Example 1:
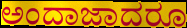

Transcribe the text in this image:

ಅಂದಾಜಾದರೂ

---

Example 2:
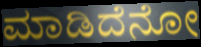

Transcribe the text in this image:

ಮಾಡಿದೆನೋ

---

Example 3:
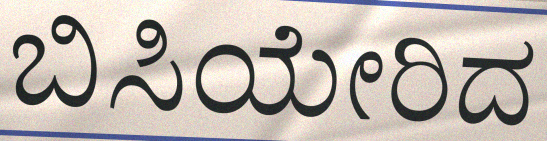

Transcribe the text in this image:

ಬಿಸಿಯೇರಿದ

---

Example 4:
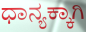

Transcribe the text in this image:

ಧಾನ್ಯಕ್ಕಾಗಿ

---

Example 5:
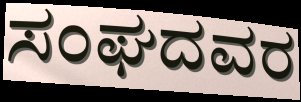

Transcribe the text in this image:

ಸಂಘದವರ